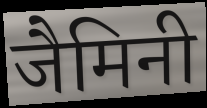
जैमिनी